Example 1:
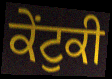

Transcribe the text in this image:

ਕੇਂਟੁਕੀ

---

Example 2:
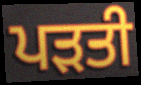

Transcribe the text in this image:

ਪੜਤੀ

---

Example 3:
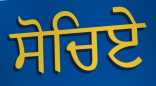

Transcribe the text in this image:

ਸੋਚਿਏ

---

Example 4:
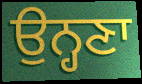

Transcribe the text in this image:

ਉਨ੍ਹਣਾ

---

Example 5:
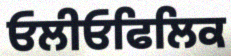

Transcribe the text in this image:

ਓਲੀਓਫਿਲਿਕ